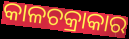
କାଳଚକ୍ରାକାର